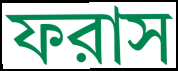
ফরাস